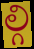
ల్గి